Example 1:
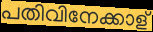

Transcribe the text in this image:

പതിവിനേക്കാള്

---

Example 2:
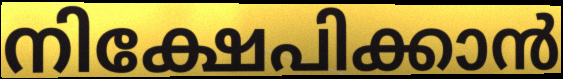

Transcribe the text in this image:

നിക്ഷേപിക്കാൻ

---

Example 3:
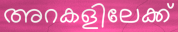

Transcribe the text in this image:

അറകളിലേക്ക്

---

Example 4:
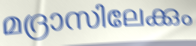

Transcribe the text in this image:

മദ്രാസിലേക്കും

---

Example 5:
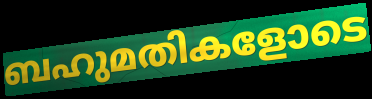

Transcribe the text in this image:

ബഹുമതികളോടെ